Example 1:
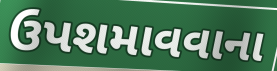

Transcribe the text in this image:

ઉપશમાવવાના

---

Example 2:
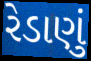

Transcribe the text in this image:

રેડાણું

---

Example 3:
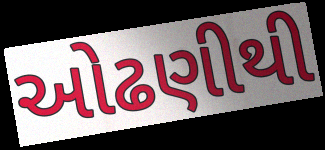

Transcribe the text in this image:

ઓઢણીથી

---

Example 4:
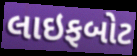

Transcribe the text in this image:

લાઇફબોટ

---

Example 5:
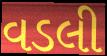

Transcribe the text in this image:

વડલી